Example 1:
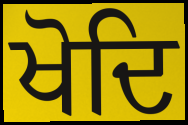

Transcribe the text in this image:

ਖੋਦਿ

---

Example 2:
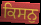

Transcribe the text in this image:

ਕਿਸਨੁ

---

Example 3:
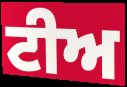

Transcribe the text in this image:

ਟੀਅ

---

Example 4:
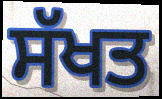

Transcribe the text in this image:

ਸੱਖਤ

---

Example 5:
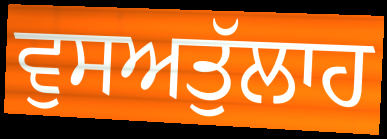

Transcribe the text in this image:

ਵੁਸਅਤੁੱਲਾਹ